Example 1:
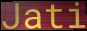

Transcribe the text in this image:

Jati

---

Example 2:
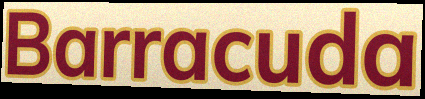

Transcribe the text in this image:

Barracuda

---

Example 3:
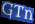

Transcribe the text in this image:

GTn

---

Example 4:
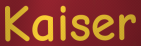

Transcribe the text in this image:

Kaiser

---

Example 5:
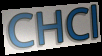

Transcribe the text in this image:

CHCl